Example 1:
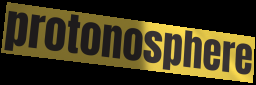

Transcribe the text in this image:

protonosphere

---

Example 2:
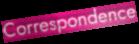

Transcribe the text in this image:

Correspondence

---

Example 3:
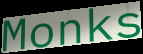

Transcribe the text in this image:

Monks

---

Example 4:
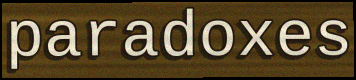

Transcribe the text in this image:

paradoxes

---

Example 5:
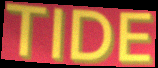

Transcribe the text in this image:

TIDE